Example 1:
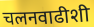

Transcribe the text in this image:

चलनवाढीशी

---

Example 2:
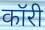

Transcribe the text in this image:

कॉरी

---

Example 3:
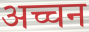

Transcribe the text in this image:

अच्चन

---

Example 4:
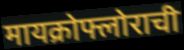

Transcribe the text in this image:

मायक्रोफ्लोराची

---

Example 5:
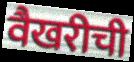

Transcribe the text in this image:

वैखरीची